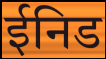
ईनिड